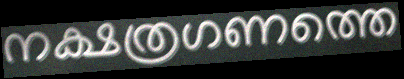
നക്ഷത്രഗണത്തെ